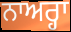
ਨਾਅਰ੍ਹਾ